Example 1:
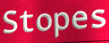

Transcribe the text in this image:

Stopes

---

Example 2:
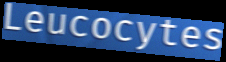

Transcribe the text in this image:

Leucocytes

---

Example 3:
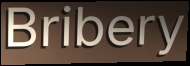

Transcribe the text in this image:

Bribery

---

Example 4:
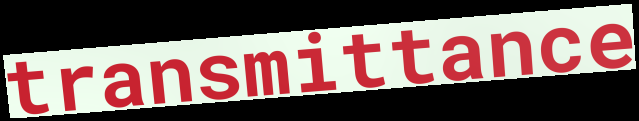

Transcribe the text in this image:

transmittance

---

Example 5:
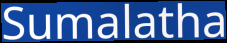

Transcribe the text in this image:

Sumalatha